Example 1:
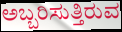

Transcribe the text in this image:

ಅಬ್ಬರಿಸುತ್ತಿರುವ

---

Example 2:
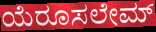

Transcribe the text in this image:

ಯೆರೂಸಲೇಮ್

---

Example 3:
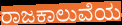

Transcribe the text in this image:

ರಾಜಕಾಲುವೆಯ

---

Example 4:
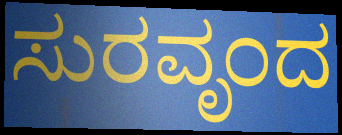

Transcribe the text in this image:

ಸುರವೃಂದ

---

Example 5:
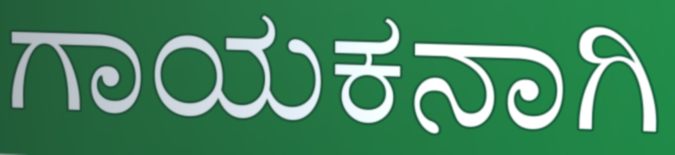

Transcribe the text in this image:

ಗಾಯಕನಾಗಿ